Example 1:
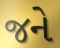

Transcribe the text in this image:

જને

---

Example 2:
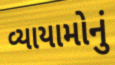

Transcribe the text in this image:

વ્યાયામોનું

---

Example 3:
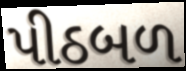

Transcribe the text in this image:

પીઠબળ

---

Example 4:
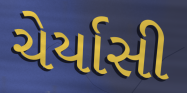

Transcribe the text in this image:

ચેર્યાસી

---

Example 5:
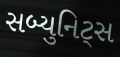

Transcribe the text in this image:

સબ્યુનિટ્સ